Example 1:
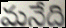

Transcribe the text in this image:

మనేది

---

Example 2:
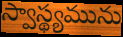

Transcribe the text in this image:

స్వాస్థ్యమును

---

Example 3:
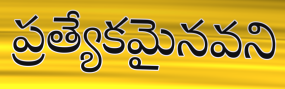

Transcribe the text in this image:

ప్రత్యేకమైనవని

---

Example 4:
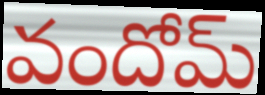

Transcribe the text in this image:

వందోమ్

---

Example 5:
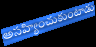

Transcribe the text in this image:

అసహ్యించుకుంటాడు